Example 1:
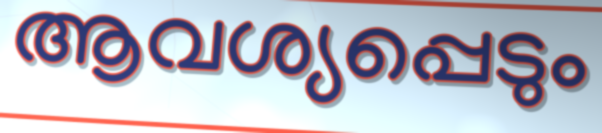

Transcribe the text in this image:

ആവശ്യപ്പെടും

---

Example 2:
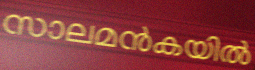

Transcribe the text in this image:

സാലമൻകയിൽ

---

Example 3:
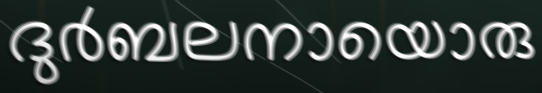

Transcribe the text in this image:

ദുർബലനായൊരു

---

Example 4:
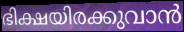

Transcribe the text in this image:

ഭിക്ഷയിരക്കുവാൻ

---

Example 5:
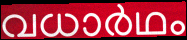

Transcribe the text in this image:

വധാർഥം